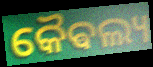
କୈଵଲ୍ୟ